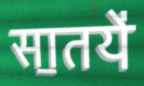
सा॒तये॑